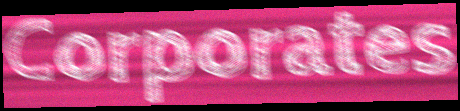
Corporates